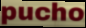
pucho